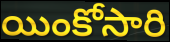
యింకోసారి